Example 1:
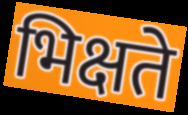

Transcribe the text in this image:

भिक्षते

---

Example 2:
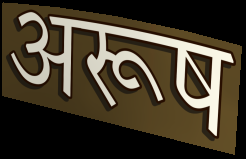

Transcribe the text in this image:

अरूष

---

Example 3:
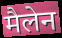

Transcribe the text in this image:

मैलेन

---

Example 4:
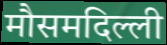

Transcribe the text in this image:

मौसमदिल्ली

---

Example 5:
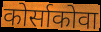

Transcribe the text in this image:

कोर्साकोवा